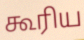
கூரிய